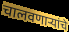
चालवणाऱ्यांचे